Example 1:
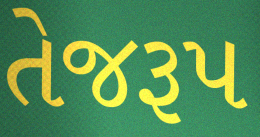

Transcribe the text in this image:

તેજરૂપ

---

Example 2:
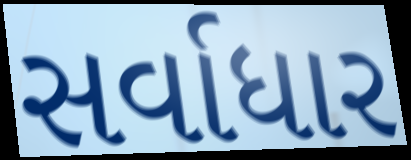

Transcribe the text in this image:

સર્વાધાર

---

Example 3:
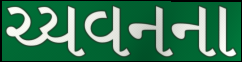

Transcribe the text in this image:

ચ્યવનના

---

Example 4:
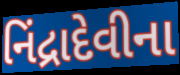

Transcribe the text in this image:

નિંદ્રાદેવીના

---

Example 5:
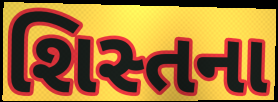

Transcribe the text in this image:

શિસ્તના